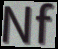
Nf